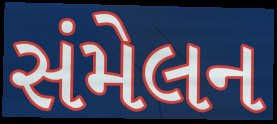
સંમેલન